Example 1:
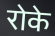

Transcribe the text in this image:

रोके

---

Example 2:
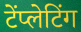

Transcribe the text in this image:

टेंप्लेटिंग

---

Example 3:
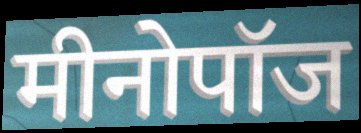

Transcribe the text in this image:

मीनोपॉज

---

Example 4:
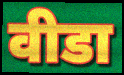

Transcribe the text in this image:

वीडा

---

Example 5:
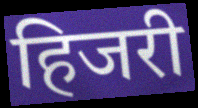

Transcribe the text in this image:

हिजरी